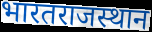
भारतराजस्थान